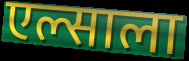
एल्साला